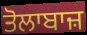
ਤੋਲਾਬਾਜ਼